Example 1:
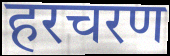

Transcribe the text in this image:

हरचरण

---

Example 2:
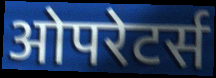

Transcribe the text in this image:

ओपरेटर्स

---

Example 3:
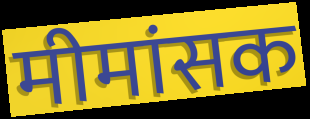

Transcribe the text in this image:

मीमांसक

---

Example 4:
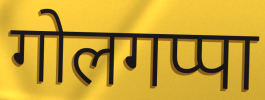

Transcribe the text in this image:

गोलगप्पा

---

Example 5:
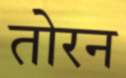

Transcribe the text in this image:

तोरन